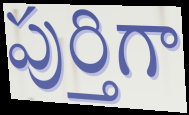
పుర్తిగా